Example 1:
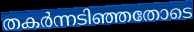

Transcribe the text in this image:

തകർന്നടിഞ്ഞതോടെ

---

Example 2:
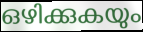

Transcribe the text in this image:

ഒഴിക്കുകയും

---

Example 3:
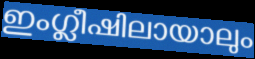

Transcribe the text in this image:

ഇംഗ്ലീഷിലായാലും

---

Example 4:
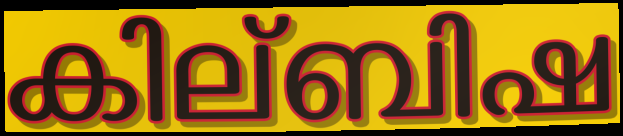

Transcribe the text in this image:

കില്ബിഷ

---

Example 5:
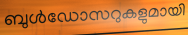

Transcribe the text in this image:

ബുൾഡോസറുകളുമായി